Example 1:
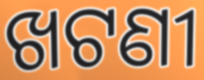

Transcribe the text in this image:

ଖଟଣୀ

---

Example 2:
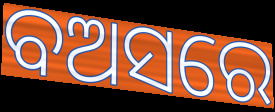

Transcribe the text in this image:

ବଅସରେ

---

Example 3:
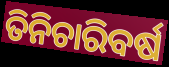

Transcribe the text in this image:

ତିନିଚାରିବର୍ଷ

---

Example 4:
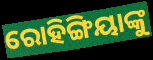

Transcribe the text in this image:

ରୋହିଙ୍ଗିୟାଙ୍କୁ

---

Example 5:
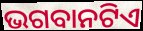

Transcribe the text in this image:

ଭଗବାନଟିଏ